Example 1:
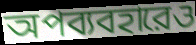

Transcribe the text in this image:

অপব্যবহারেও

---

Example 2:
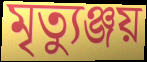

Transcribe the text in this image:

মৃত্যুঞ্জয়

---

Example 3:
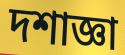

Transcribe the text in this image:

দশাজ্ঞা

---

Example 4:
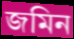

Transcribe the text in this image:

জমিন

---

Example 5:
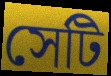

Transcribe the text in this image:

সেটি